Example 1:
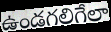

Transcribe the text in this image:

ఉండగలిగేలా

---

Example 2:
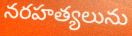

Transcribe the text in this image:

నరహత్యలును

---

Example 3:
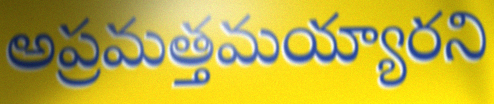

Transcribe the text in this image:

అప్రమత్తమయ్యారని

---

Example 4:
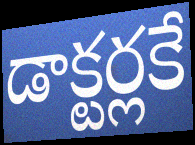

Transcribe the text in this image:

డాక్టర్లకే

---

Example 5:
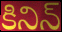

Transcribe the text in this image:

కినిన్